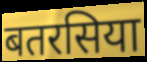
बतरसिया